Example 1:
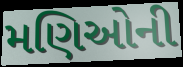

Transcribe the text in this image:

મણિઓની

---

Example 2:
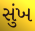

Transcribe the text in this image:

સુંખ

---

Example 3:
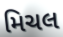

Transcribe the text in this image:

મિચલ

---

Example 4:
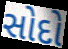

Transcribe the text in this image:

સોદો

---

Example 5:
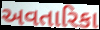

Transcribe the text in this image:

અવતારિકા